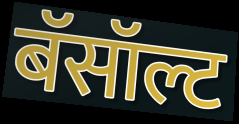
बॅसॉल्ट